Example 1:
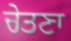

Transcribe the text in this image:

ਚੇਤਣਾ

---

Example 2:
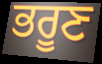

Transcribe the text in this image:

ਭਰੂਣ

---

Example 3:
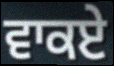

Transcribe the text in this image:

ਵਾਕਏ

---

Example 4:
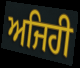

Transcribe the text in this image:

ਅਜਿਹੀ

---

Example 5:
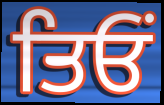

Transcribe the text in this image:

ਤਿਓਂ